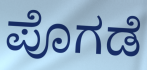
ಪೊಗಡೆ